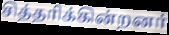
சித்தரிக்கின்றனர்